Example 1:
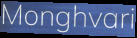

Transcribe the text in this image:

Monghvari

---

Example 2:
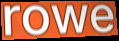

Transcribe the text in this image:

rowe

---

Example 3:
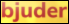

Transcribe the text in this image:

bjuder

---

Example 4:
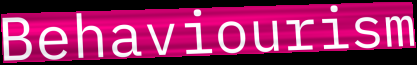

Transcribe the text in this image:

Behaviourism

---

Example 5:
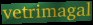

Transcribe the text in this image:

vetrimagal